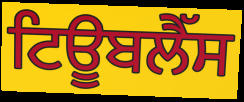
ਟਿਊਬਲੈੱਸ